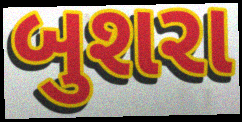
બુશરા